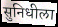
सुनिधीला